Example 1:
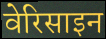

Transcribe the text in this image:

वेरिसाइन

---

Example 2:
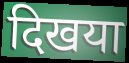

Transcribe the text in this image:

दिखया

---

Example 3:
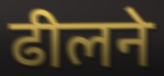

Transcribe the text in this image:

ढीलने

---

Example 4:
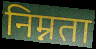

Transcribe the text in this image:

निम्नता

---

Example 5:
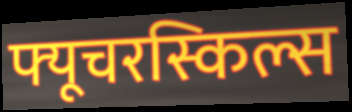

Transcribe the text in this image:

फ्यूचरस्किल्स